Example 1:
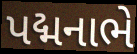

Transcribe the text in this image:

પદ્મનાભે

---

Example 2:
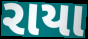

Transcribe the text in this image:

રાયા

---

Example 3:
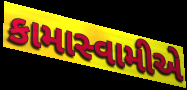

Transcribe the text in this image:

કામાસ્વામીએ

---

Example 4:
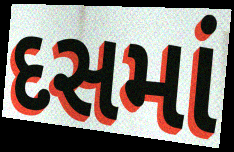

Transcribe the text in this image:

દસમાં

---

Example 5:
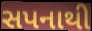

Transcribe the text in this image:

સપનાથી